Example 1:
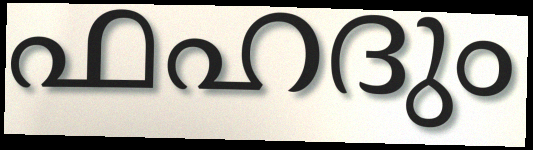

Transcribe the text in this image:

ഫഹദും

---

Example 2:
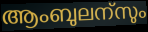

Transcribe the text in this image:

ആംബുലന്സും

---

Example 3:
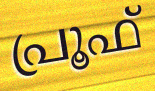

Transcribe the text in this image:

പ്രൂഫ്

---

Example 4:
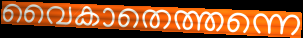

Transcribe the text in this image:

വൈകാതെത്തന്നെ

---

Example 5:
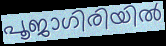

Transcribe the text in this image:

പൂജാഗിരിയിൽ